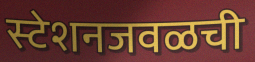
स्टेशनजवळची